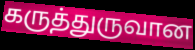
கருத்துருவான